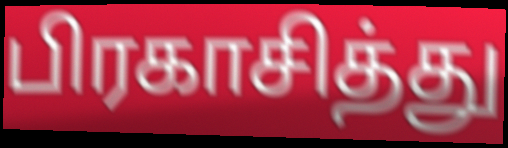
பிரகாசித்து